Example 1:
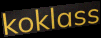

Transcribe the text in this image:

koklass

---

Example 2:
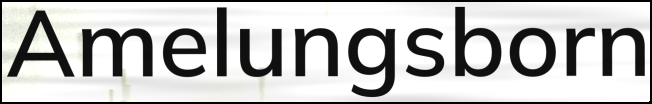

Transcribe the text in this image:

Amelungsborn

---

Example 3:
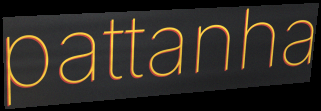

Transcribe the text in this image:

pattanha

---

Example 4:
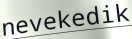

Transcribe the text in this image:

nevekedik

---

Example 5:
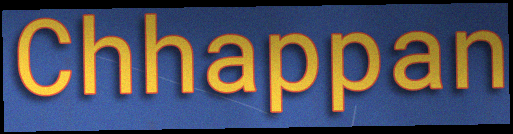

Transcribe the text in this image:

Chhappan